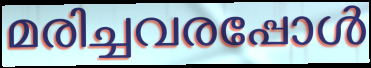
മരിച്ചവരപ്പോൾ